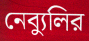
নেব্যুলির